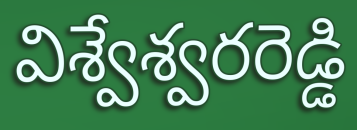
విశ్వేశ్వరరెడ్డి